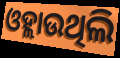
ଓହ୍ଲାଉଥିଲି